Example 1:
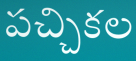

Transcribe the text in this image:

పచ్చికల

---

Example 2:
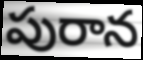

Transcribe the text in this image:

పురాన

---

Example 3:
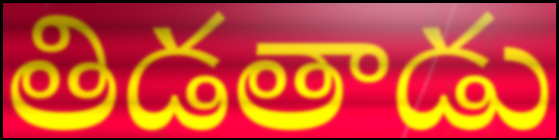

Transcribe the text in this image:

తిడతాడు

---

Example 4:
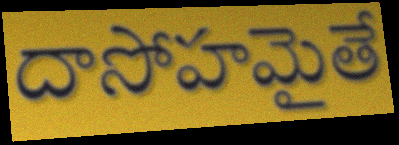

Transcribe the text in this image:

దాసోహమైతే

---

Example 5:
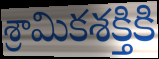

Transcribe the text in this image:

శ్రామికశక్తికి